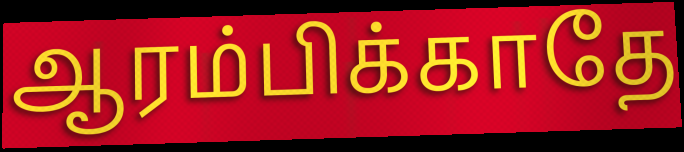
ஆரம்பிக்காதே